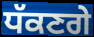
ਧੱਕਣਗੇ